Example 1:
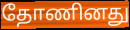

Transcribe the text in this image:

தோணினது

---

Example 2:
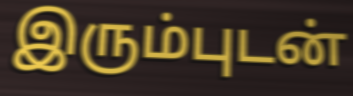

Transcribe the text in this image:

இரும்புடன்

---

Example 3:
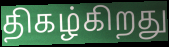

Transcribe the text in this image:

திகழ்கிறது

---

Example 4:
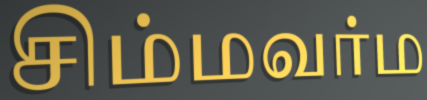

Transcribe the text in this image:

சிம்மவர்ம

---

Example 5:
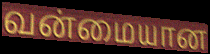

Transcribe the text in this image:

வன்மையான